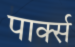
पार्क्‍स